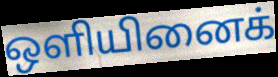
ஒளியினைக்